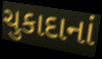
ચુકાદાનાં